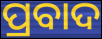
ପ୍ରବାଦ